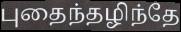
புதைந்தழிந்தே